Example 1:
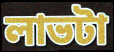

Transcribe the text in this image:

লাভটা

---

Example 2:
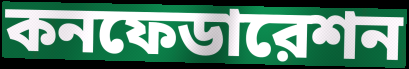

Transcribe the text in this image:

কনফেডারেশন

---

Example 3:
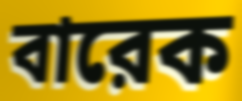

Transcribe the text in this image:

বারেক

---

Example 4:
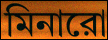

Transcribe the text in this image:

মিনারো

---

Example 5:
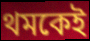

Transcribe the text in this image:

থমকেই